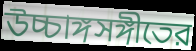
উচ্চাঙ্গসঙ্গীতের